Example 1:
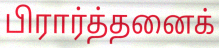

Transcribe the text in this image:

பிரார்த்தனைக்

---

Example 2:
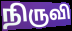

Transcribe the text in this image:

நிருவி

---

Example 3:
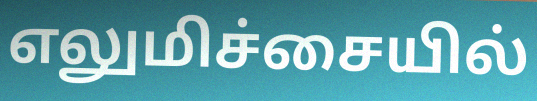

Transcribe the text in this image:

எலுமிச்சையில்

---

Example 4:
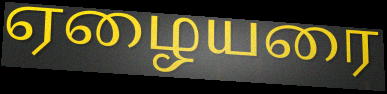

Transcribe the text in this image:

ஏழையரை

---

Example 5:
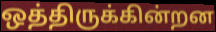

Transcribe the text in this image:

ஒத்திருக்கின்றன